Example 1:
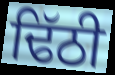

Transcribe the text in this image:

ਢਿੱਠੀ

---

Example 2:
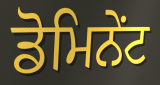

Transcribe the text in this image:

ਡੋਮਿਨੇਂਟ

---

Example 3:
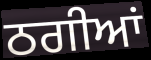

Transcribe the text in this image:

ਠਗੀਆਂ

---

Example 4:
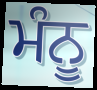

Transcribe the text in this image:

ਮੰਨੂ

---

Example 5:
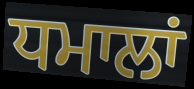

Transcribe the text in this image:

ਧਮਾਲਾਂ